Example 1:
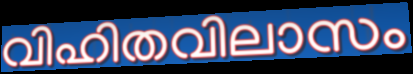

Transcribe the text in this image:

വിഹിതവിലാസം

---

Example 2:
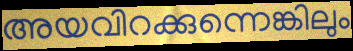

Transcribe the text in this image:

അയവിറക്കുന്നെങ്കിലും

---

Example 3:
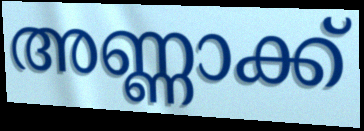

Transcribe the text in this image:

അണ്ണാക്ക്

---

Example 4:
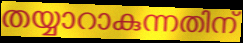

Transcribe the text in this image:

തയ്യാറാകുന്നതിന്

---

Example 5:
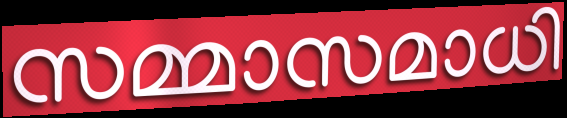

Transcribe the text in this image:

സമ്മാസമാധി